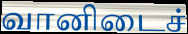
வானிடைச்